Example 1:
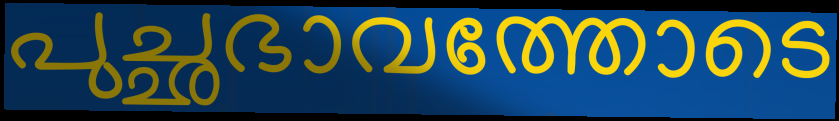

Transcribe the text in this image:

പുച്ഛഭാവത്തോടെ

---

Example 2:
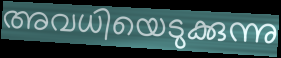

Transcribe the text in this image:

അവധിയെടുക്കുന്നു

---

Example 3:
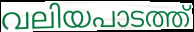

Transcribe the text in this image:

വലിയപാടത്ത്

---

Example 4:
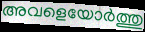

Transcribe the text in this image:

അവളെയോർത്തു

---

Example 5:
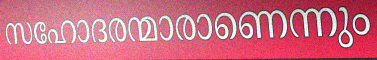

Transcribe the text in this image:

സഹോദരന്മാരാണെന്നും